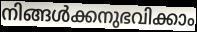
നിങ്ങൾക്കനുഭവിക്കാം